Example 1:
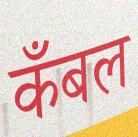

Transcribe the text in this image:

कँबल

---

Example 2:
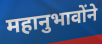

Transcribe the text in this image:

महानुभावोंने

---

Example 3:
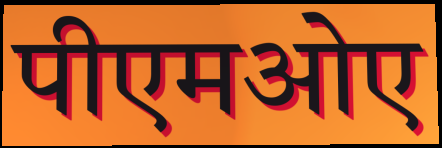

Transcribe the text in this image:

पीएमओए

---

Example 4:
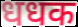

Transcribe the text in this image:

धधक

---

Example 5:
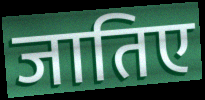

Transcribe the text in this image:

जातिए